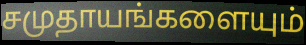
சமுதாயங்களையும்